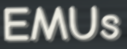
EMUs